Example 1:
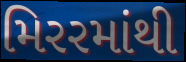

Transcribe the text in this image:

મિરરમાંથી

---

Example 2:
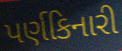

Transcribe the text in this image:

પર્ણકિનારી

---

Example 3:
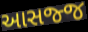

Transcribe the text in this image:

આસજ્જ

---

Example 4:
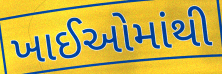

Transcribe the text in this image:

ખાઈઓમાંથી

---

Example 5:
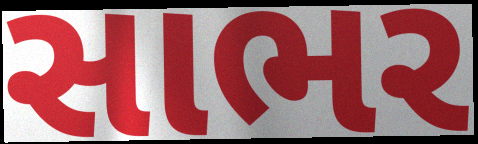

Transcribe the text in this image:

સાભર